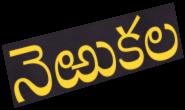
నెఱుకల